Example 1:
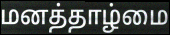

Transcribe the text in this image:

மனத்தாழ்மை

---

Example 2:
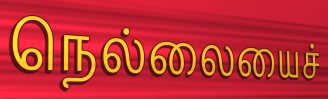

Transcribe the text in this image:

நெல்லையைச்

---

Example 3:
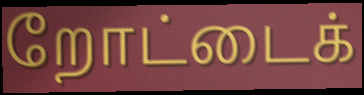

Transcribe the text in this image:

றோட்டைக்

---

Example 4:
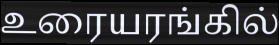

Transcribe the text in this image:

உரையரங்கில்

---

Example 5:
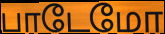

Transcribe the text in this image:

பாடேமோ